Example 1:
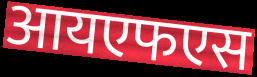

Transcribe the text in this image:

आयएफएस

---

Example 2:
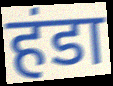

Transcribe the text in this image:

हंडा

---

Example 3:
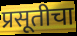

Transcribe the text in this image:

प्रसूतीचा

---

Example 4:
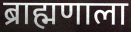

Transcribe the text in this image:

ब्राह्मणाला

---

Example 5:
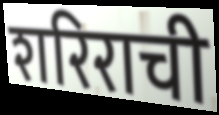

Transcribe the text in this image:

शरिराची